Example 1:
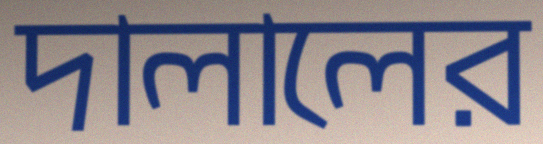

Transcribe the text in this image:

দালালের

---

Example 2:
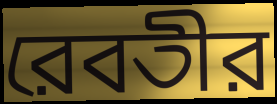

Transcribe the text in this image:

রেবতীর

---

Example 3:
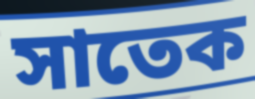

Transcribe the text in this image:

সাতেক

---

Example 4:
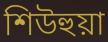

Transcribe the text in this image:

শিউহুয়া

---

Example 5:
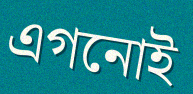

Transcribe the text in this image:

এগনোই